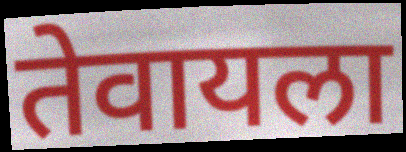
तेवायला